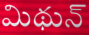
మిథున్